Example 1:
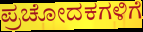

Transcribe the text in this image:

ಪ್ರಚೋದಕಗಳಿಗೆ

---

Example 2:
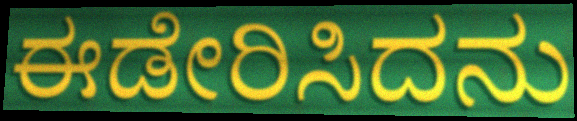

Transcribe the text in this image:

ಈಡೇರಿಸಿದನು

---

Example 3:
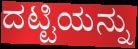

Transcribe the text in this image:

ದಟ್ಟಿಯನ್ನು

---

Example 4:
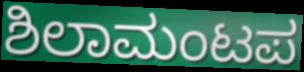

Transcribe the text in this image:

ಶಿಲಾಮಂಟಪ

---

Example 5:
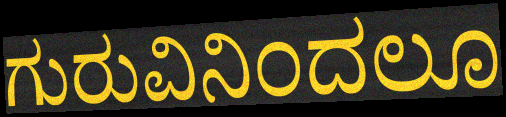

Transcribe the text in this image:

ಗುರುವಿನಿಂದಲೂ